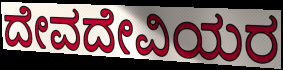
ದೇವದೇವಿಯರ